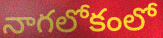
నాగలోకంలో